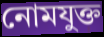
নোমযুক্ত